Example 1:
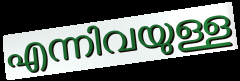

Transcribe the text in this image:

എന്നിവയുള്ള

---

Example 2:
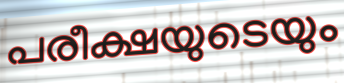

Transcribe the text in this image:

പരീക്ഷയുടെയും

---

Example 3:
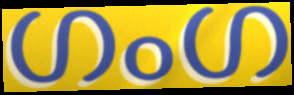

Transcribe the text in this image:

ഗംഗ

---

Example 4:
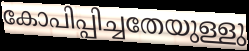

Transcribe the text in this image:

കോപിപ്പിച്ചതേയുള്ളു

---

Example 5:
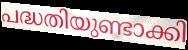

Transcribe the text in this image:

പദ്ധതിയുണ്ടാക്കി